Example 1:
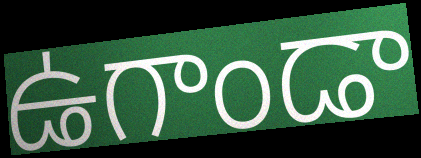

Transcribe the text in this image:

ఉగాండా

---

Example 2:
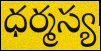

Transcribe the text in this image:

ధర్మస్య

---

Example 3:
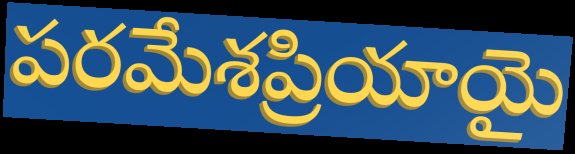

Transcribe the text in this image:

పరమేశప్రియాయై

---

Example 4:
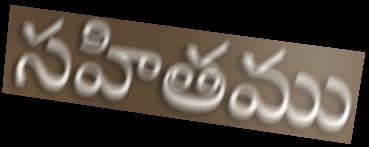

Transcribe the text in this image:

సహితము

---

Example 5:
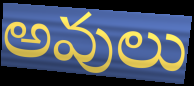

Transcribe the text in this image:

అవులు